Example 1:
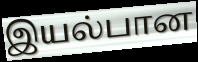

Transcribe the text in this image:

இயல்பான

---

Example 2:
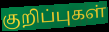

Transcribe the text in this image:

குறிப்புகள்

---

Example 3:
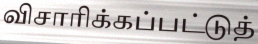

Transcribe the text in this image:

விசாரிக்கப்பட்டுத்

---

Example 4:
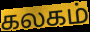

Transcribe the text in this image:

கலகம்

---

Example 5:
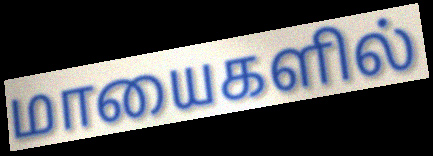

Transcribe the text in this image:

மாயைகளில்